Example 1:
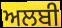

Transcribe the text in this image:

ਅਲਬੀ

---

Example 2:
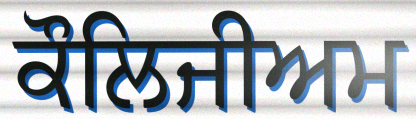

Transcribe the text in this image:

ਕੌਲਿਜੀਅਮ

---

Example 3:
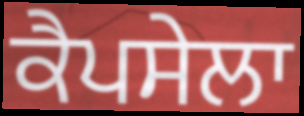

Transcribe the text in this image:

ਕੈਪਸੇਲਾ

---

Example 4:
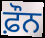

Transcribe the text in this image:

ਫ਼ੌਨ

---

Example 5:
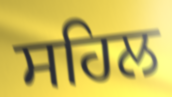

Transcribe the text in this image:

ਸਹਿਲ